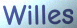
Willes